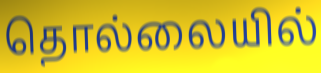
தொல்லையில்